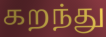
கறந்து